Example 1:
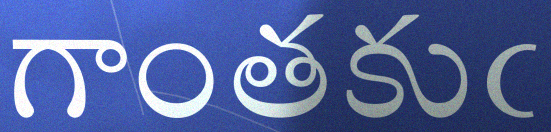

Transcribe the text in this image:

గాంతకుఁ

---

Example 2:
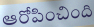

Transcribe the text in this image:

ఆరోపించింది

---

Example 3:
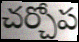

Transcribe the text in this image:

చర్చోప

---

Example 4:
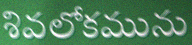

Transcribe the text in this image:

శివలోకమును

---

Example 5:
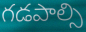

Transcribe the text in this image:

గడపాల్సి